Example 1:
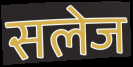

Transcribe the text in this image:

सलेज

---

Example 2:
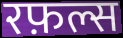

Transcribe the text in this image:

रफ़ल्स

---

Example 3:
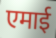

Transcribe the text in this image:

एमाई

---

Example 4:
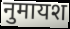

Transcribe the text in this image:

नुमायश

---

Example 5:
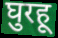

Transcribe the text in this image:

घुरहू